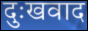
दुःखवाद